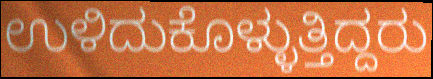
ಉಳಿದುಕೊಳ್ಳುತ್ತಿದ್ದರು